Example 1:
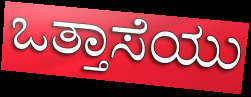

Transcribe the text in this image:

ಒತ್ತಾಸೆಯು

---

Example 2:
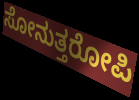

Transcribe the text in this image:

ಸೋನುತ್ತರೋಪಿ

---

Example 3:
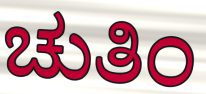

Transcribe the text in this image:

ಚುತಿಂ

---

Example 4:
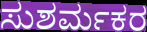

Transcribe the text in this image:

ಸುಶರ್ಮಕರ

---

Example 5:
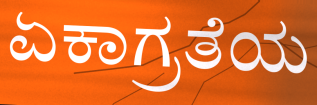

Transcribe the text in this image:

ಏಕಾಗ್ರತೆಯ